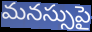
మనస్సుపై